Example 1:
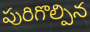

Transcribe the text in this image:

పురిగొల్పిన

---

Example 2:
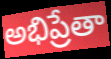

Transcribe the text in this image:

అభిప్రేతా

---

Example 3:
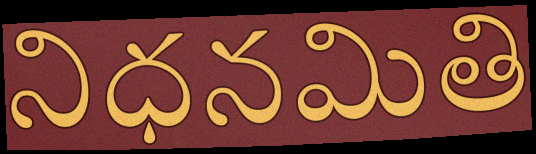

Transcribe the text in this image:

నిధనమితి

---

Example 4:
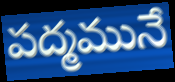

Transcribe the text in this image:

పద్మమునే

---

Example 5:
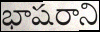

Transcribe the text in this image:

భాషరాని